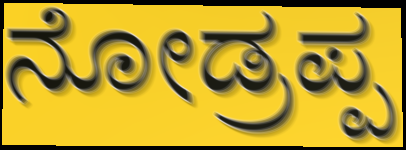
ನೋಡ್ರಪ್ಪ